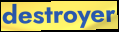
destroyer